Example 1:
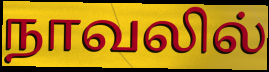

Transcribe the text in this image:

நாவலில்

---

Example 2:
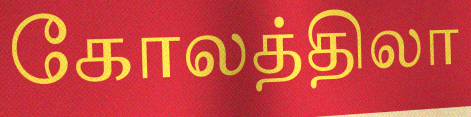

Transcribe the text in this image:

கோலத்திலா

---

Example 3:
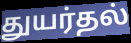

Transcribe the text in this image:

துயர்தல்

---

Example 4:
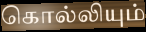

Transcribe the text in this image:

கொல்லியும்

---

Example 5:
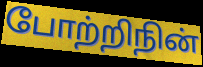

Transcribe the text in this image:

போற்றிநின்